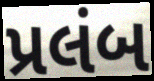
પ્રલંબ